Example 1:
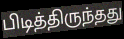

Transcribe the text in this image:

பிடித்திருந்தது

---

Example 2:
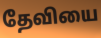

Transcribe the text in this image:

தேவியை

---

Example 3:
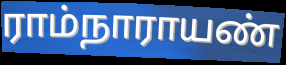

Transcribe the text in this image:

ராம்நாராயண்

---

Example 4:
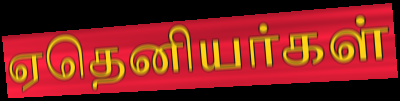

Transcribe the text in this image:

ஏதெனியர்கள்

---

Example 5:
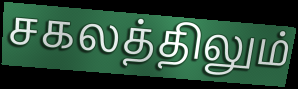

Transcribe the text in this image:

சகலத்திலும்